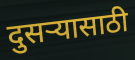
दुसऱ्यासाठी